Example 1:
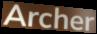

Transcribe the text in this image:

Archer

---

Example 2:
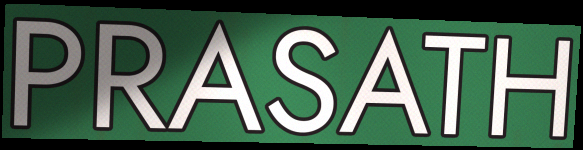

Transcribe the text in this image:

PRASATH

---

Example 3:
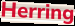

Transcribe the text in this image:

Herring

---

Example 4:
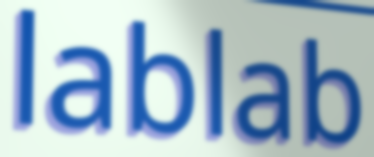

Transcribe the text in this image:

lablab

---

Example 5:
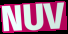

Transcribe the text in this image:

NUV